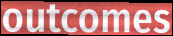
outcomes